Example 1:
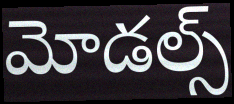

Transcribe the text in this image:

మోడల్స్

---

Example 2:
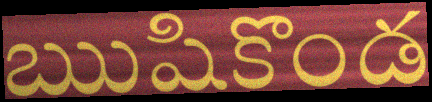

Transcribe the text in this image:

ఋషికొండ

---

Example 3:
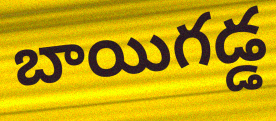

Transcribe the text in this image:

బాయిగడ్డ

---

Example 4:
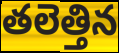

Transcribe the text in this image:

తలెత్తిన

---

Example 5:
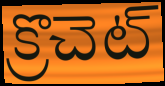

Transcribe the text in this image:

క్రొచెట్